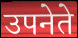
उपनेते